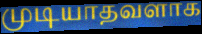
முடியாதவளாக